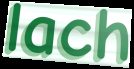
lach